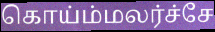
கொய்ம்மலர்ச்சே